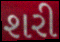
શરી